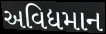
અવિદ્યમાન